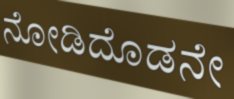
ನೋಡಿದೊಡನೇ